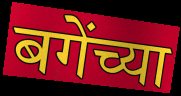
बगेंच्या